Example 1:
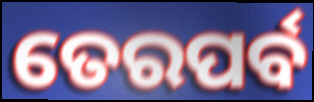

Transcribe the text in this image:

ତେରପର୍ବ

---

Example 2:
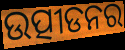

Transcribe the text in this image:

ଉତ୍ପୀଡନର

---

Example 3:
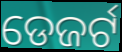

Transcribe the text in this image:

ଡେଜର୍ଟ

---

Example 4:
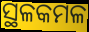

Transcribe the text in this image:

ସ୍ଥଳକମଳ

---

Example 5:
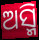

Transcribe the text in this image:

ଅସ୍ମି